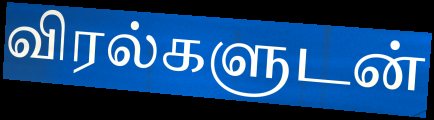
விரல்களுடன்